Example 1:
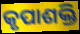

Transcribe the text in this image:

କୃପାଶକ୍ତି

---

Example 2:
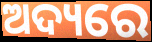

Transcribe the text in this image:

ଅଦ୍ୟରେ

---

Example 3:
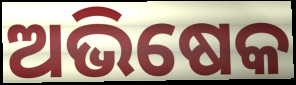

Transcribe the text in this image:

ଅଭିଷେକ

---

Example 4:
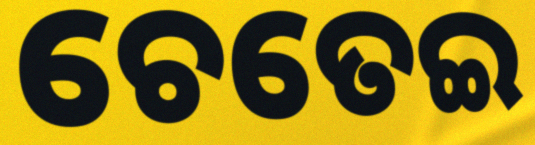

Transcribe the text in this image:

ଚେତେଇ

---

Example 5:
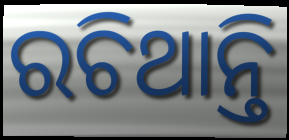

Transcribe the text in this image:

ରଚିଥାନ୍ତି